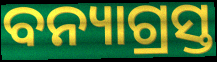
ବନ୍ୟାଗ୍ରସ୍ତ